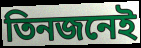
তিনজনেই